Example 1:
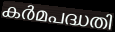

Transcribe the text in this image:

കർമപദ്ധതി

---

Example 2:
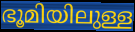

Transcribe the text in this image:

ഭൂമിയിലുള്ള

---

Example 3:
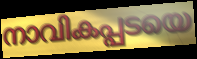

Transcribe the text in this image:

നാവികപ്പടയെ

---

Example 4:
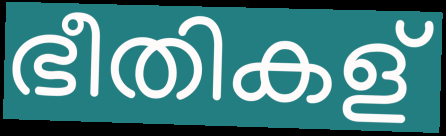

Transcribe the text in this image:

ഭീതികള്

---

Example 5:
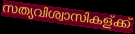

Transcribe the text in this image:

സത്യവിശ്വാസികള്ക്ക്